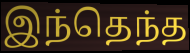
இந்தெந்த